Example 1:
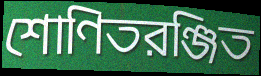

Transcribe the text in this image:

শোণিতরঞ্জিত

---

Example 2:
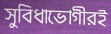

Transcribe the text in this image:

সুবিধাভোগীরই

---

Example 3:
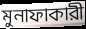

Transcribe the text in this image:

মুনাফাকারী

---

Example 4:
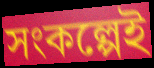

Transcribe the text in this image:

সংকল্পেই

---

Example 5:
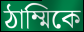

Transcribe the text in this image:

ঠাম্মিকে